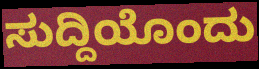
ಸುದ್ದಿಯೊಂದು